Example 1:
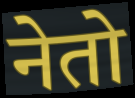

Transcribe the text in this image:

नेतो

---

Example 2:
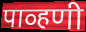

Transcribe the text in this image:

पाव्हणी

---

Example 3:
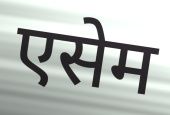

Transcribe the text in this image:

एसेम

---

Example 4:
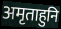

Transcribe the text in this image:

अमृताहुनि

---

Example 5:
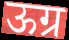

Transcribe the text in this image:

ऊग्र